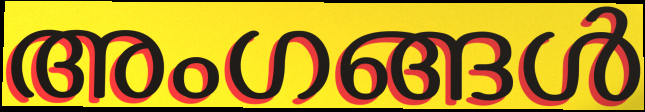
അംഗങ്ങൾ